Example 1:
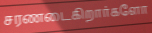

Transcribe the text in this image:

சரணடைகிறார்களோ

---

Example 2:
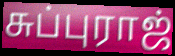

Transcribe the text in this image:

சுப்புராஜ்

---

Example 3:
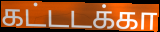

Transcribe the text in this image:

கட்டடக்கா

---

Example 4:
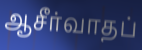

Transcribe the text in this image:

ஆசீர்வாதப்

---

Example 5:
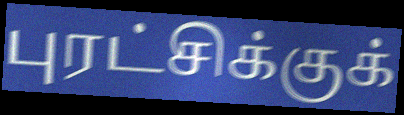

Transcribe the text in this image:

புரட்சிக்குக்